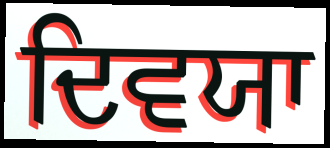
ਦਿਵਯਾ